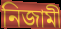
নিজামী